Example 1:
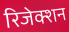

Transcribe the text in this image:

रिजेक्शन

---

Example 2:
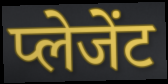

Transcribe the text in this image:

प्लेजेंट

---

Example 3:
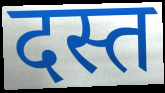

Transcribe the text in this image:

दस्त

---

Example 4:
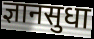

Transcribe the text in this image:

ज्ञानसुधा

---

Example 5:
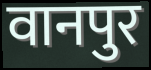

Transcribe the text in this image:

वानपुर